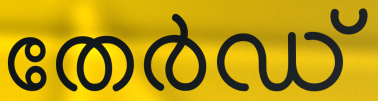
തേർഡ്